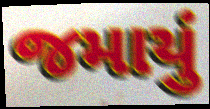
જમાયું